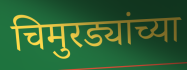
चिमुरड्यांच्या